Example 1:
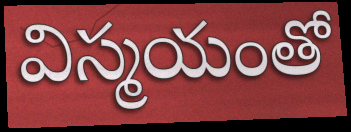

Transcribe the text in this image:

విస్మయంతో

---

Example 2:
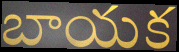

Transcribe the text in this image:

బాయక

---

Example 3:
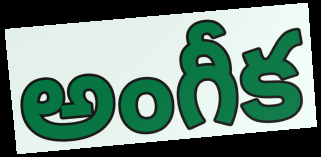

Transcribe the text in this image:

అంగీక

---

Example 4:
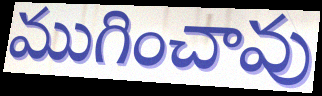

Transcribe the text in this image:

ముగించావు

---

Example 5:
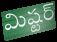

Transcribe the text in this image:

మిష్టర్